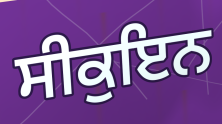
ਸੀਕੁਇਨ